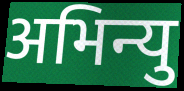
अभिन्यु